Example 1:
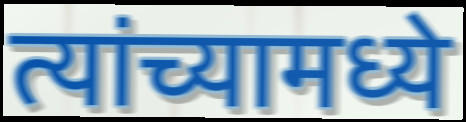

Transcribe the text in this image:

त्यांच्यामध्ये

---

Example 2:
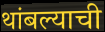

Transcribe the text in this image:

थांबल्याची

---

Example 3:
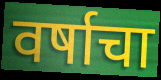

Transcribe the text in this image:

वर्षाचा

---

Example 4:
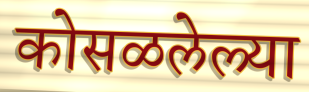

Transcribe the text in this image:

कोसळलेल्या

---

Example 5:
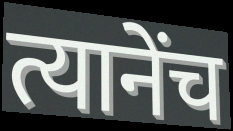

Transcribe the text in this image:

त्यानेंच